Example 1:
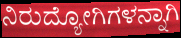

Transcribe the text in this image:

ನಿರುದ್ಯೋಗಿಗಳನ್ನಾಗಿ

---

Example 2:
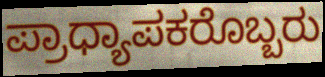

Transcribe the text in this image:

ಪ್ರಾಧ್ಯಾಪಕರೊಬ್ಬರು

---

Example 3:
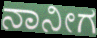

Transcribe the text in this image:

ನಾನೀಗ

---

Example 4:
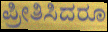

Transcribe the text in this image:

ಪ್ರೀತಿಸಿದರೂ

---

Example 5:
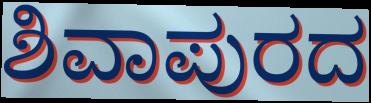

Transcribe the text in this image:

ಶಿವಾಪುರದ